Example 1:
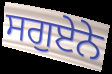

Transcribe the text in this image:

ਸਗੁਏਨੇ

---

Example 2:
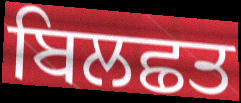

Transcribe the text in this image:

ਬਿਲਛਤ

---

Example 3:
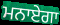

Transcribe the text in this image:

ਮਨਾਏਗਾ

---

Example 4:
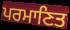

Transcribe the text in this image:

ਪਰਮਾਣਿਤ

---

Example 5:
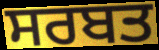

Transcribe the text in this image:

ਸਰਬਤ